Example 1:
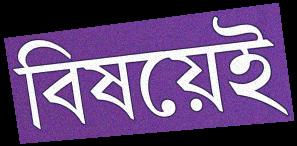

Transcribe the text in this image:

বিষয়েই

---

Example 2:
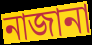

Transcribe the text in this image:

নাজানা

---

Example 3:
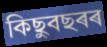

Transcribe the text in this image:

কিছুবছৰৰ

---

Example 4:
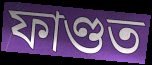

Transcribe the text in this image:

ফাণ্ডত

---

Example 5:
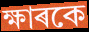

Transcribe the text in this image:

ক্ষাৰকে